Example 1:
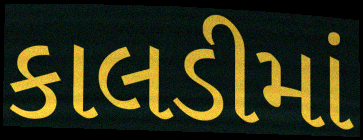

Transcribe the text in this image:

કાલડીમાં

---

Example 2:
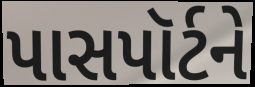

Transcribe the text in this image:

પાસપૉર્ટને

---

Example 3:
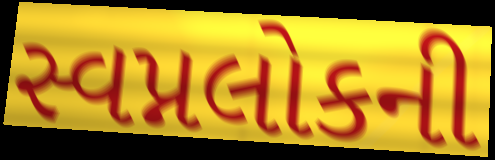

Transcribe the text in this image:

સ્વપ્નલોકની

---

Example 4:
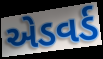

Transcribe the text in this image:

એડવર્ડ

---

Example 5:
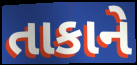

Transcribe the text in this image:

તાકાને